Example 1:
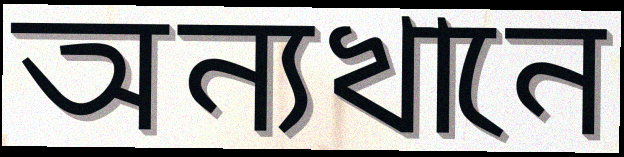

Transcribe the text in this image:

অন্যখানে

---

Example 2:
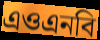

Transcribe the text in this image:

এওএনবি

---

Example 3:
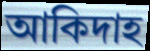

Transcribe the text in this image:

আকিদাহ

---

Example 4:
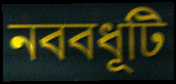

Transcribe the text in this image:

নববধূটি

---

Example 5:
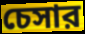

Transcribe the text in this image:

চেসার